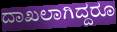
ದಾಖಲಾಗಿದ್ದರೂ